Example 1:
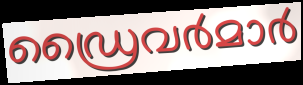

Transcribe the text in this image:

ഡ്രൈവർമാർ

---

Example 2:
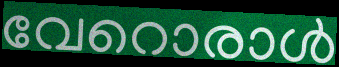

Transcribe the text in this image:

വേറൊരാൾ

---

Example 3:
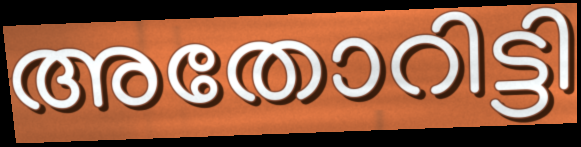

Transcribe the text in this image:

അതോറിട്ടി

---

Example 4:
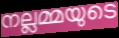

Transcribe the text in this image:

നല്ലമ്മയുടെ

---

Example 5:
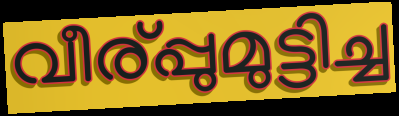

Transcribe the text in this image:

വീര്പ്പുമുട്ടിച്ച